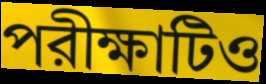
পরীক্ষাটিও